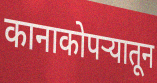
कानाकोपर्‍यातून